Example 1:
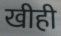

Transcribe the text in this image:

खीही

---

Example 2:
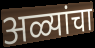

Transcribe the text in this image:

अळ्यांचा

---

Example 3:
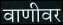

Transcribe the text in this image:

वाणीवर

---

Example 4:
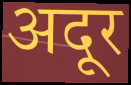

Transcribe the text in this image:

अदूर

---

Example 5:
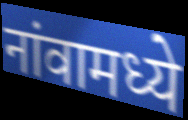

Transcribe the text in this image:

नांवामध्ये